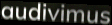
audivimus